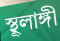
স্থূলাঙ্গী